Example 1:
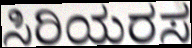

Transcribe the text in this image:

ಸಿರಿಯರಸ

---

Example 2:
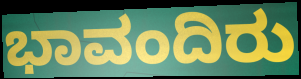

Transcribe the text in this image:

ಭಾವಂದಿರು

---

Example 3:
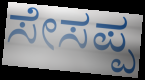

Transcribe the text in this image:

ಸೇಸಪ್ಪ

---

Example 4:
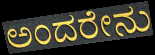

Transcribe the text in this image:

ಅಂದರೇನು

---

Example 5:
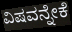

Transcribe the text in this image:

ವಿಷವನ್ನೇಕೆ